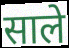
साले